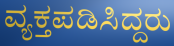
ವ್ಯಕ್ತಪಡಿಸಿದ್ದರು